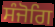
ਸੰਜੋਗਿ